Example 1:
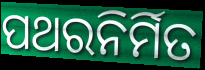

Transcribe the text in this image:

ପଥରନିର୍ମିତ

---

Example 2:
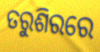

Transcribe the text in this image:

ତରୁଶିରରେ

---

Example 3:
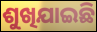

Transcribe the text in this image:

ଶୁଖିଯାଇଛି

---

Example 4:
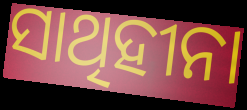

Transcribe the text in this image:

ସାଥିହୀନା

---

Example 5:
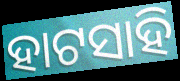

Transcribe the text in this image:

ହାଟସାହି